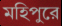
মহিপুরে